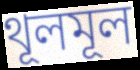
থূলমূল